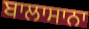
ਬਾਲਾਸਾਨਾ